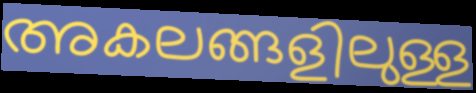
അകലങ്ങളിലുള്ള